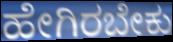
ಹೇಗಿರಬೇಕು